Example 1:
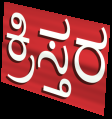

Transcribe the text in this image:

ಕ್ರಿಸ್ತರ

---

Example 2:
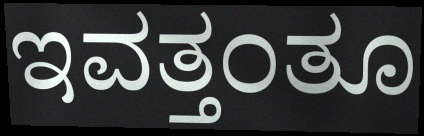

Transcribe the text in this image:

ಇವತ್ತಂತೂ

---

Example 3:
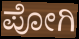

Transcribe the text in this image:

ಪೋಗಿ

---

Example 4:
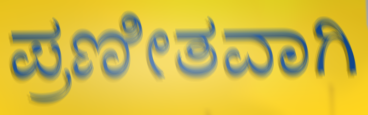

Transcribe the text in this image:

ಪ್ರಣೀತವಾಗಿ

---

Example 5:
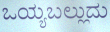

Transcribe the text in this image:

ಒಯ್ಯಬಲ್ಲುದು